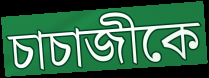
চাচাজীকে